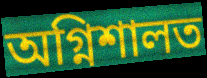
অগ্নিশালত